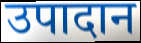
उपादान